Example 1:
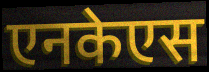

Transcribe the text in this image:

एनकेएस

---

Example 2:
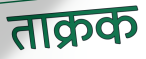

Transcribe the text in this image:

ताक्रक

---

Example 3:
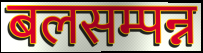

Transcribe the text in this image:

बलसम्पन्न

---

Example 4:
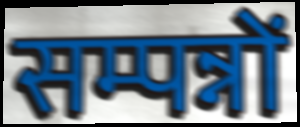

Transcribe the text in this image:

सम्पन्नों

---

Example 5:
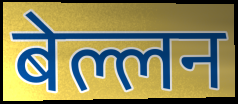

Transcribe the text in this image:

बेल्लन